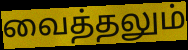
வைத்தலும்